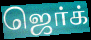
ஜெர்க்